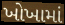
ખોખામાં